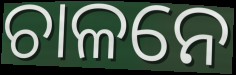
ଚାଳନେ